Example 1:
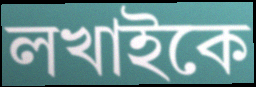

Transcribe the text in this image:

লখাইকে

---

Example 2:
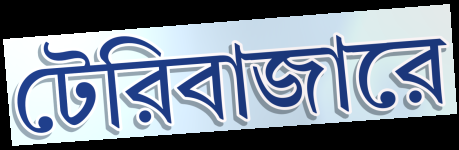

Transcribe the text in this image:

টেরিবাজারে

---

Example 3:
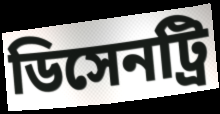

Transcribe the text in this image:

ডিসেনট্রি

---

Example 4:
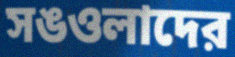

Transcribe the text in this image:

সঙওলাদের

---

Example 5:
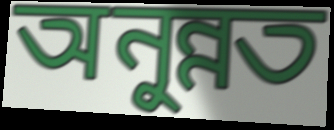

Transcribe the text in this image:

অনুন্নত